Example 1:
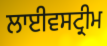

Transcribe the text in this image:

ਲਾਈਵਸਟ੍ਰੀਮ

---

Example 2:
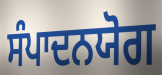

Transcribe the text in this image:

ਸੰਪਾਦਨਯੋਗ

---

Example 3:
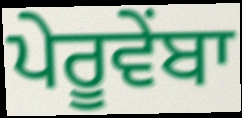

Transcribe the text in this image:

ਪੇਰੂਵੇਂਬਾ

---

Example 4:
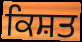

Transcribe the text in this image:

ਕਿਸ਼ਤ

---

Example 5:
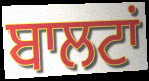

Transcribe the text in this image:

ਬਾਲਟਾਂ